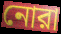
নোরা